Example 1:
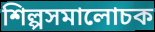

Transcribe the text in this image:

শিল্পসমালোচক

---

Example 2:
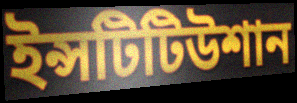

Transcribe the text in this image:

ইন্সটিটিউশান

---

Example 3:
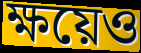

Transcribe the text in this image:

ক্ষয়েও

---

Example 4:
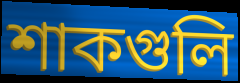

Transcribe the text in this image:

শাকগুলি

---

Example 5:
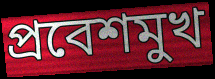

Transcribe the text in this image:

প্রবেশমুখ